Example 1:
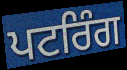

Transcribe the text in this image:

ਪਟਰਿੰਗ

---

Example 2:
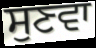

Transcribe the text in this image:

ਸੁਣਵਾ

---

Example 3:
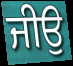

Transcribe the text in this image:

ਜੀਉ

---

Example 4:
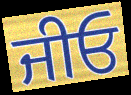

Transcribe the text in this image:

ਜੀਓ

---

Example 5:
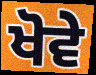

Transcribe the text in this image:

ਖੋਵੇ